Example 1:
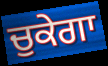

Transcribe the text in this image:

ਚੁਕੇਗਾ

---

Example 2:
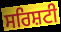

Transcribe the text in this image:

ਸਰਿਸ਼ਟੀ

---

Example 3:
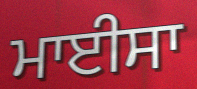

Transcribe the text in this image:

ਮਾਈਸਾ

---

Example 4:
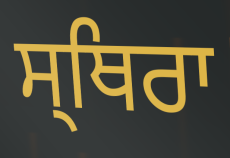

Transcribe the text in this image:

ਸ੍ਥਿਰਾ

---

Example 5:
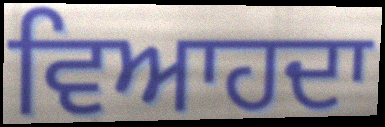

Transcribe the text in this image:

ਵਿਆਹਦਾ